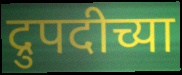
द्रुपदीच्या